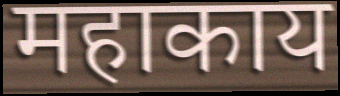
महाकाय